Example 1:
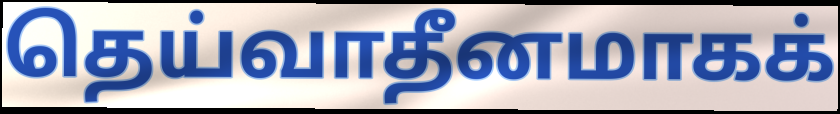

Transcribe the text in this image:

தெய்வாதீனமாகக்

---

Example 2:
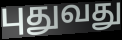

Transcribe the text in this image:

புதுவது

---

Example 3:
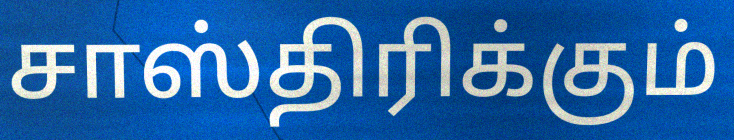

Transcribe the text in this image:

சாஸ்திரிக்கும்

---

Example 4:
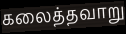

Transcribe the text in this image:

கலைத்தவாறு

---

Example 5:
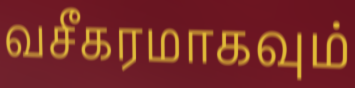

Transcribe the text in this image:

வசீகரமாகவும்